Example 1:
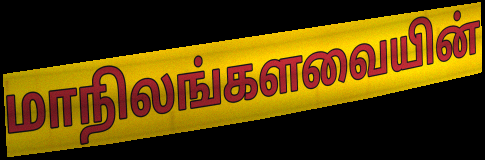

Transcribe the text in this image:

மாநிலங்களவையின்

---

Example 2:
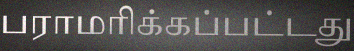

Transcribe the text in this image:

பராமரிக்கப்பட்டது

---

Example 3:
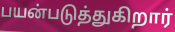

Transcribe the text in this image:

பயன்படுத்துகிறார்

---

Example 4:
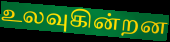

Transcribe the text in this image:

உலவுகின்றன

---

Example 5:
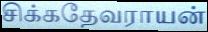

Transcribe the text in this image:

சிக்கதேவராயன்